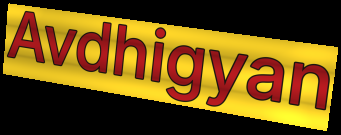
Avdhigyan